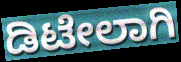
ಡಿಟೇಲಾಗಿ